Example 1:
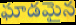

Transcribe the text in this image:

ఘాడమైన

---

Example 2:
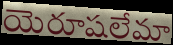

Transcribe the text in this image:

యెరూషలేమా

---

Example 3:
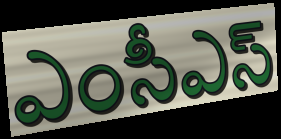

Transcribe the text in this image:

ఎంసీఎస్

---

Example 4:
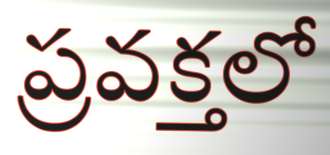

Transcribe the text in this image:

ప్రవక్తలో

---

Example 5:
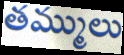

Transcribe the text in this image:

తమ్ములు